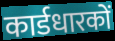
कार्डधारकों